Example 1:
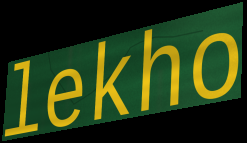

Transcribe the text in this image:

lekho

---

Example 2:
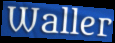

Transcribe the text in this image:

Waller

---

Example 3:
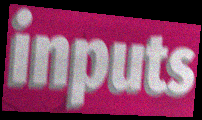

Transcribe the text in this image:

inputs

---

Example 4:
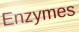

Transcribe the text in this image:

Enzymes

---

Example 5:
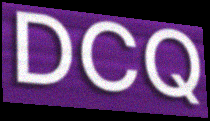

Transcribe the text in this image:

DCQ